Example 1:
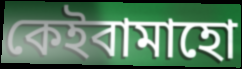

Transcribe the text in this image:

কেইবামাহো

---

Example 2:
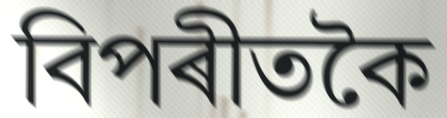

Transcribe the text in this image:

বিপৰীতকৈ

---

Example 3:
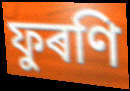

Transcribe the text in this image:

ফুৰণি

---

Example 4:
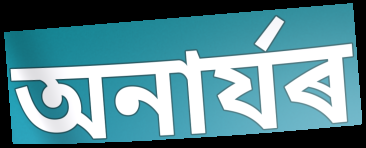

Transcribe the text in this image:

অনাৰ্যৰ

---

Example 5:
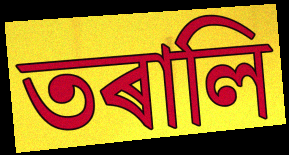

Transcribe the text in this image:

তৰালি